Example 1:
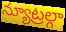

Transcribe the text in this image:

న్యూట్రల్గా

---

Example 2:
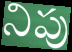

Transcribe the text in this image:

నిపు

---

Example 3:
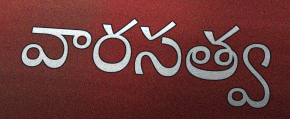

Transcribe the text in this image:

వారసత్వ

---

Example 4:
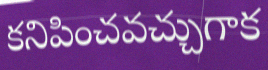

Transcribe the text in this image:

కనిపించవచ్చుగాక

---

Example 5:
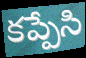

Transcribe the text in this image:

కప్పేసి